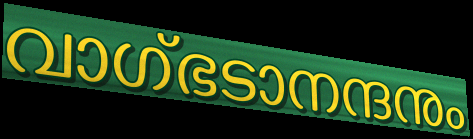
വാഗ്ഭടാനന്ദനും